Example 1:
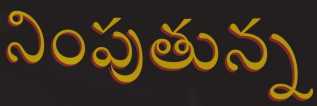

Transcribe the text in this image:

నింపుతున్న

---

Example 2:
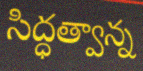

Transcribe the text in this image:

సిద్ధత్వాన్న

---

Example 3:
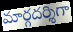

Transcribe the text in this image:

మార్గదర్శిగా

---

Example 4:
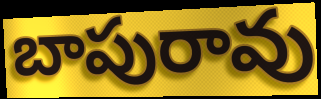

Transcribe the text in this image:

బాపురావు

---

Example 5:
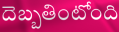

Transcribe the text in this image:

దెబ్బతింటోంది